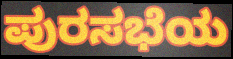
ಪುರಸಭೆಯ